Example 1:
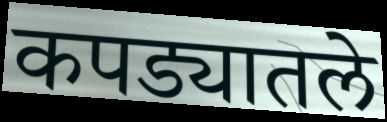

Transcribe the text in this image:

कपड्यातले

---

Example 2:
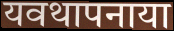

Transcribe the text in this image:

यवथापनाया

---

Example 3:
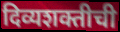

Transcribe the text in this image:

दिव्यशक्तीची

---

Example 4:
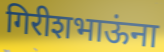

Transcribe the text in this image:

गिरीशभाऊंना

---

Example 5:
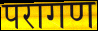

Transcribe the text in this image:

परागण